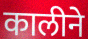
कालीने